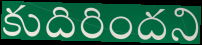
కుదిరిందని